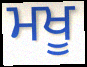
ਮਖੂ